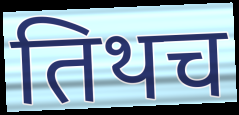
तिथच